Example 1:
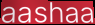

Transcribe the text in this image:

aashaa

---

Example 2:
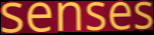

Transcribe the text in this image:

senses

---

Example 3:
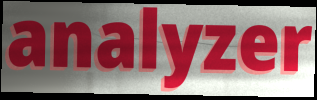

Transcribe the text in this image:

analyzer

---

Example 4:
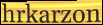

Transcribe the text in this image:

hrkarzon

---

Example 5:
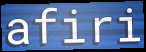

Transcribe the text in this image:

afiri